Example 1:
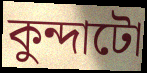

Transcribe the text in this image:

কুন্দাটো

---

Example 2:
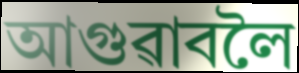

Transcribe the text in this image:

আগুৱাবলৈ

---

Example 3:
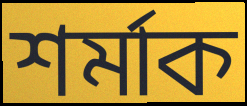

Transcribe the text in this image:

শৰ্মাক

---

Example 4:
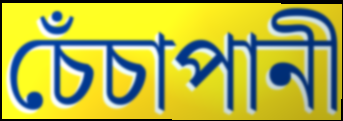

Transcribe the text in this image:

চেঁচাপানী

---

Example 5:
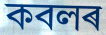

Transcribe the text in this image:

কবলৰ